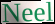
Neel